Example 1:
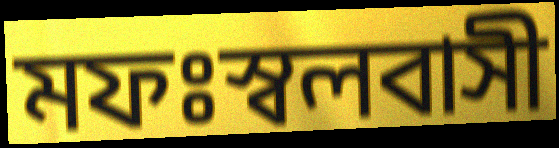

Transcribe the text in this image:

মফঃস্বলবাসী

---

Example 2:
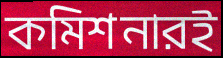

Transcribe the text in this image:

কমিশনারই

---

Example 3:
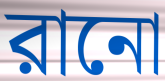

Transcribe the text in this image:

রানো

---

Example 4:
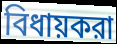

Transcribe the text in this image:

বিধায়করা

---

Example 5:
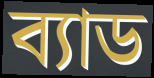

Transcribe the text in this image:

ব্যাড